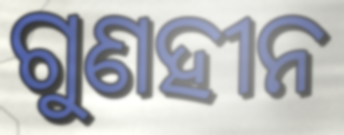
ଗୁଣହୀନ